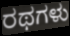
ರಥಗಳು